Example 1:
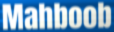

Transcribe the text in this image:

Mahboob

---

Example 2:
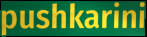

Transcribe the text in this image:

pushkarini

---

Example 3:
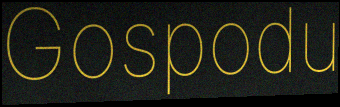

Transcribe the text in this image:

Gospodu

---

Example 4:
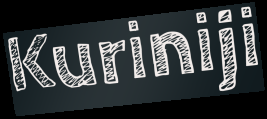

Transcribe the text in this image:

Kuriniji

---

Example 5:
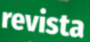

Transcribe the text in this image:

revista